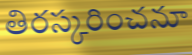
తిరస్కరించనూ